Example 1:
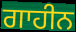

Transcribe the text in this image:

ਗਾਹੀਨ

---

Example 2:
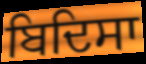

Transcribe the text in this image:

ਬਿਦਿਸਾ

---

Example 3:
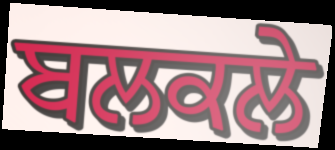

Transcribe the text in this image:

ਬਲਕਲੇ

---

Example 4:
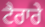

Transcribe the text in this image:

ਟੈਰਾਰੇ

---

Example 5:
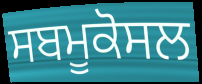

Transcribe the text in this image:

ਸਬਮੂਕੋਸਲ